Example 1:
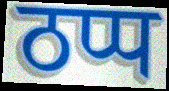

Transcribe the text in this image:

ठप्प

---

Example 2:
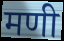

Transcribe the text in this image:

मणी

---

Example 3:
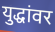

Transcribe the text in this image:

युद्धांवर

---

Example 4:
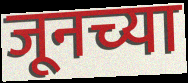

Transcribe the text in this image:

जूनच्या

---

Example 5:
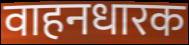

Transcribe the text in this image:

वाहनधारक